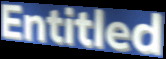
Entitled